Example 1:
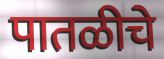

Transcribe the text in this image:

पातळीचे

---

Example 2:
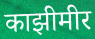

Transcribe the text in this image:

काझीमीर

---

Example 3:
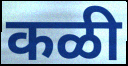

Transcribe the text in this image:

कळी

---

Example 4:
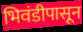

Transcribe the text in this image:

भिवंडीपासून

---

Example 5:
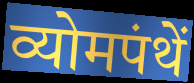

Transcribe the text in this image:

व्योमपंथें